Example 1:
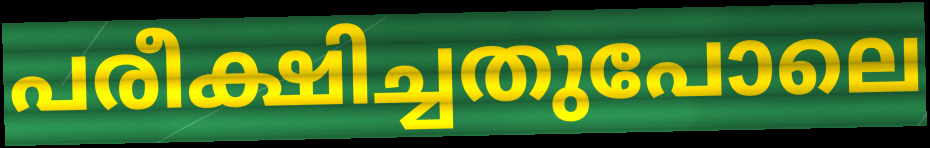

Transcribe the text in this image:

പരീക്ഷിച്ചതുപോലെ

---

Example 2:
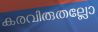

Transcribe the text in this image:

കരവിരുതല്ലോ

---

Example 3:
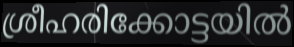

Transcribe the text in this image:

ശ്രീഹരിക്കോട്ടയിൽ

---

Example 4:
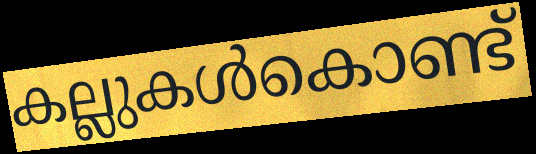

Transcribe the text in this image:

കല്ലുകൾകൊണ്ട്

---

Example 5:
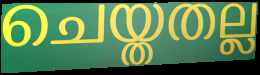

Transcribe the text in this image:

ചെയ്തതല്ല